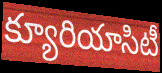
క్యూరియాసిటీ